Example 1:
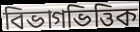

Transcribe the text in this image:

বিভাগভিত্তিক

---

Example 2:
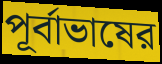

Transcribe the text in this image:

পূর্বাভাষের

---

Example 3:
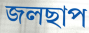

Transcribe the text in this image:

জলছাপ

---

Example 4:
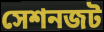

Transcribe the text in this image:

সেশনজট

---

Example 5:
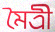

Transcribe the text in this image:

মৈত্রী